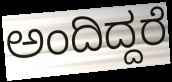
ಅಂದಿದ್ದರೆ